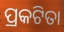
ପ୍ରକଟିତା